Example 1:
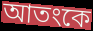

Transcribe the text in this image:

আতংকে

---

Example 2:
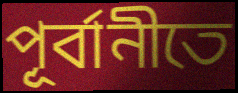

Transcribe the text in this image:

পূর্বানীতে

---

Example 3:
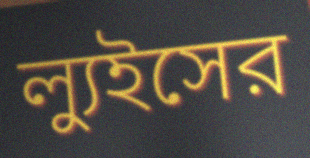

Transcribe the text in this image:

ল্যুইসের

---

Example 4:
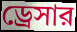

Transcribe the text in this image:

ড্রেসার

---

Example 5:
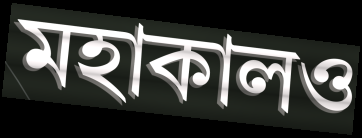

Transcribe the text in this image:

মহাকালও